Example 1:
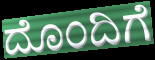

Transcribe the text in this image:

ದೊಂದಿಗೆ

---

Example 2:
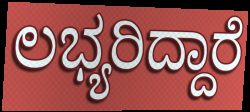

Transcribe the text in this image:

ಲಭ್ಯರಿದ್ದಾರೆ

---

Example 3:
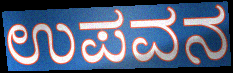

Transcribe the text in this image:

ಉಪವನ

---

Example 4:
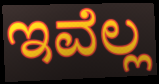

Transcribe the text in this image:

ಇವೆಲ್ಲ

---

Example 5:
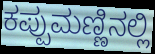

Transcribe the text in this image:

ಕಪ್ಪುಮಣ್ಣಿನಲ್ಲಿ